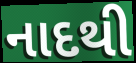
નાદથી